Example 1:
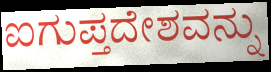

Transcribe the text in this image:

ಐಗುಪ್ತದೇಶವನ್ನು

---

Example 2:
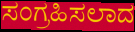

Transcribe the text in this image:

ಸಂಗ್ರಹಿಸಲಾದ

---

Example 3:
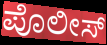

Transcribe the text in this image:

ಪೊಲೀಸ್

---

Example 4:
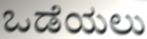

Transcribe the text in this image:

ಒಡೆಯಲು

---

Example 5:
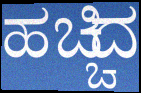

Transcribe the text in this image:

ಹಚ್ಚಿದ